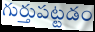
గుర్తుపట్టడం